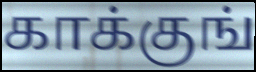
காக்குங்